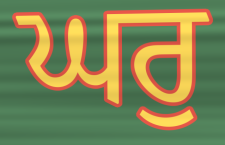
ਘਰੁ